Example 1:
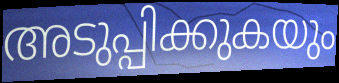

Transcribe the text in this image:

അടുപ്പിക്കുകയും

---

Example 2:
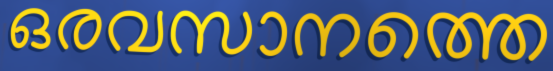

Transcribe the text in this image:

ഒരവസാനത്തെ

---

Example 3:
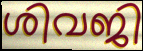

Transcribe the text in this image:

ശിവജി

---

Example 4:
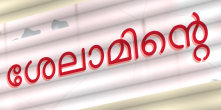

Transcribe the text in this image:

ശേലാമിന്റെ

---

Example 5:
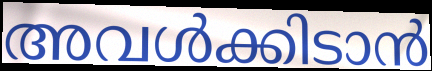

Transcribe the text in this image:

അവൾക്കിടാൻ